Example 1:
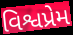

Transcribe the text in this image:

વિશ્વપ્રેમ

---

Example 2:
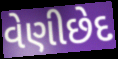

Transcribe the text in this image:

વેણીછેદ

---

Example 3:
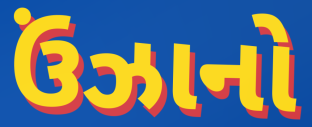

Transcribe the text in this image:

ઉંઝાનો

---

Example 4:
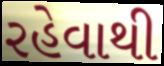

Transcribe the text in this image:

રહેવાથી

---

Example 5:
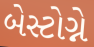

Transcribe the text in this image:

બેસ્ટોગ્ને